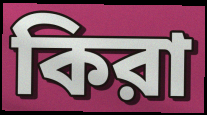
কিরা